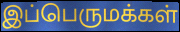
இப்பெருமக்கள்